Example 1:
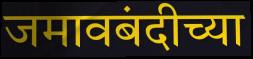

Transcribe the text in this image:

जमावबंदीच्या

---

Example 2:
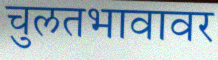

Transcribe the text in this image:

चुलतभावावर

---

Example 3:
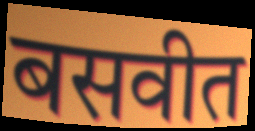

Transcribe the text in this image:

बसवीत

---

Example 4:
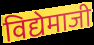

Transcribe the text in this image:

विद्येमाजी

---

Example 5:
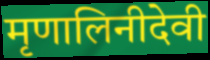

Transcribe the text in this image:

मृणालिनीदेवी